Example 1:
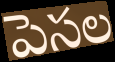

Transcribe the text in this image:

పెసల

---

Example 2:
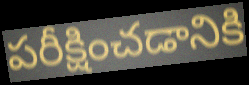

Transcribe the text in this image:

పరీక్షించడానికి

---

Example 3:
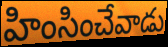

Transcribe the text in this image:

హింసించేవాడు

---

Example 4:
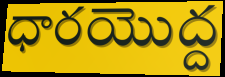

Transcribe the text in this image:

ధారయొద్ద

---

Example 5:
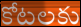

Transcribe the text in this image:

కోటలకు